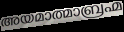
അയമാത്മാബ്രഹ്മ